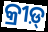
କ୍ରୀଡ଼୍